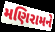
મણિરામને